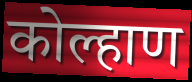
कोल्हाण